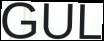
GUL